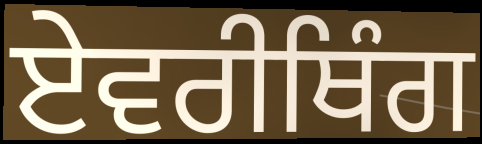
ਏਵਰੀਥਿੰਗ